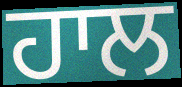
ਹਾਲ